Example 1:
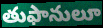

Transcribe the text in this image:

తుఫానులూ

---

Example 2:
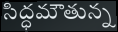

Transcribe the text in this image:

సిద్ధమౌతున్న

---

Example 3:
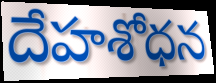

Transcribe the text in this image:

దేహశోధన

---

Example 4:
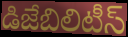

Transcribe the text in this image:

డిజేబిలిటీస్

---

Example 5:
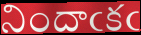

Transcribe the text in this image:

నిందాఁకఁ